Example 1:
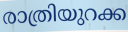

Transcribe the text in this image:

രാത്രിയുറക്ക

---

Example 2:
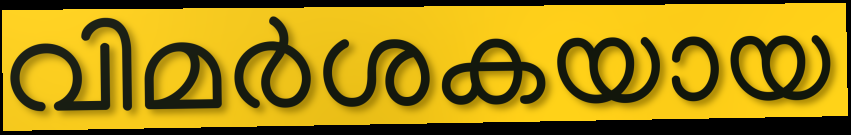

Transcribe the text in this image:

വിമർശകയായ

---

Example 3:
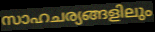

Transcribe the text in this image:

സാഹചര്യങ്ങളിലും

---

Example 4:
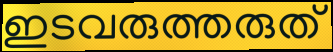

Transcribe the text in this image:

ഇടവരുത്തരുത്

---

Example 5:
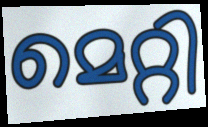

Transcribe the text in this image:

മെറ്റി